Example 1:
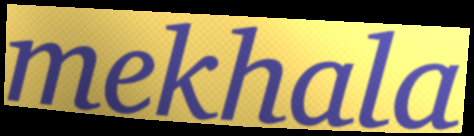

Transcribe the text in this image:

mekhala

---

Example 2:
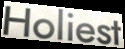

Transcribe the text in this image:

Holiest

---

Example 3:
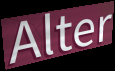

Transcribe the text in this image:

Alter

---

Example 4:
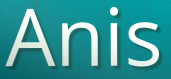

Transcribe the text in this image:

Anis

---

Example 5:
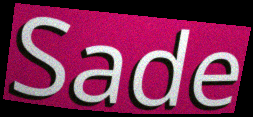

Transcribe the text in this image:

Sade